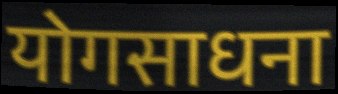
योगसाधना